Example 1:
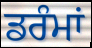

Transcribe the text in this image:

ਡਰੰਮਾਂ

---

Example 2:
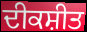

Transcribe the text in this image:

ਦੀਕਸ਼ੀਤ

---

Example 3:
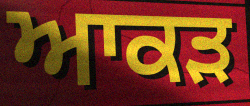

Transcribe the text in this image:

ਆਕੜ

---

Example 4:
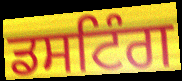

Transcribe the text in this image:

ਡਸਟਿੰਗ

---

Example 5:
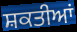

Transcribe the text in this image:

ਸ਼ਕਤੀਆਂ